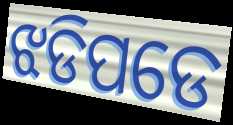
ଝଡିପଡେ